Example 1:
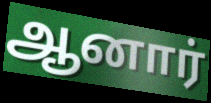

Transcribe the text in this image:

ஆனார்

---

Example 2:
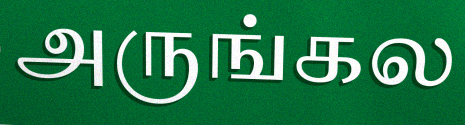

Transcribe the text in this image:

அருங்கல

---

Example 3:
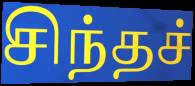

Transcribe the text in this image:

சிந்தச்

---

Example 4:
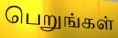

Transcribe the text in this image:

பெறுங்கள்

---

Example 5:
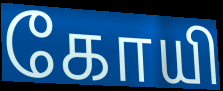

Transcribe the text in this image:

கோயி